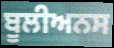
ਬੂਲੀਅਨਸ